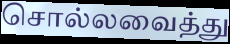
சொல்லவைத்து